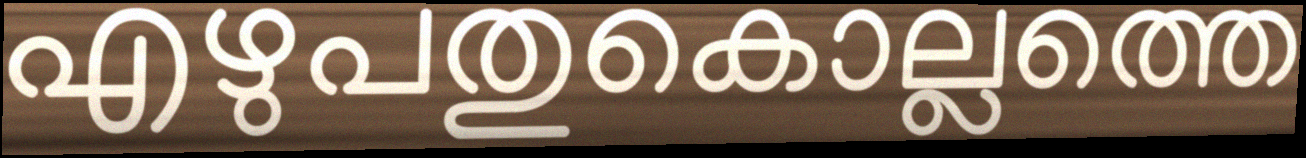
എഴുപതുകൊല്ലത്തെ